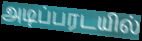
அடிப்பரடயில்